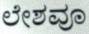
ಲೇಶವೂ